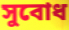
সুবোধ